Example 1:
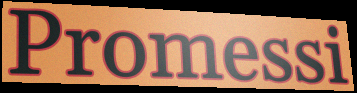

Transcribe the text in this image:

Promessi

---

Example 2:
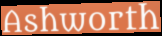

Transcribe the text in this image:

Ashworth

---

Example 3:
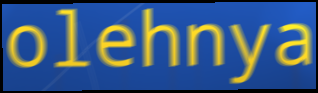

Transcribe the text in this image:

olehnya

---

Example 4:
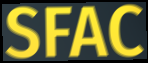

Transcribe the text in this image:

SFAC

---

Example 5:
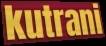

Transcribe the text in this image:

kutrani